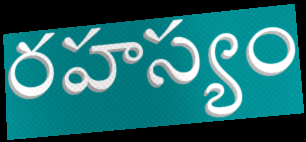
రహస్యం